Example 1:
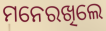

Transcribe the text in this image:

ମନେରଖିଲେ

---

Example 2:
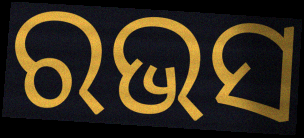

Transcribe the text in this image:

ରଭସ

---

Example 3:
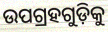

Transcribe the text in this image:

ଉପଗ୍ରହଗୁଡ଼ିକୁ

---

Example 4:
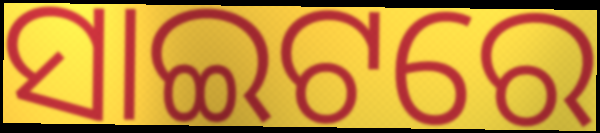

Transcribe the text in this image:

ସାଇଟରେ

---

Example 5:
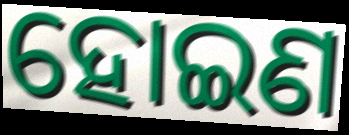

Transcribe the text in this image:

ହୋଇଣ